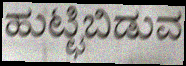
ಹುಟ್ಟಿಬಿಡುವ